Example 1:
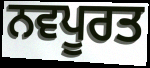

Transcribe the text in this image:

ਨਵਪੂਰਤ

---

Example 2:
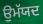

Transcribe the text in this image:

ਉਮੱਯਦ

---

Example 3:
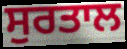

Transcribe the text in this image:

ਸੁਰਤਾਲ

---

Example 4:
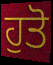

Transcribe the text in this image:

ਹੁਤੋ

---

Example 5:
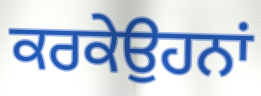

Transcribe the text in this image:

ਕਰਕੇਉਹਨਾਂ